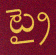
ట్రై